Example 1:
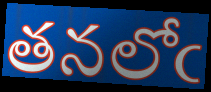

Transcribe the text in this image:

తనలోఁ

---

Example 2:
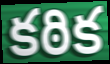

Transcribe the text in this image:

కఠిక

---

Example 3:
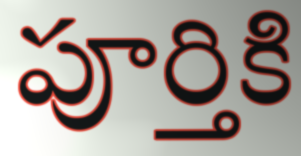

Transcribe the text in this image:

పూర్తికి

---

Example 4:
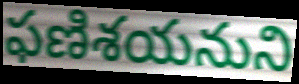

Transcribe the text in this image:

ఫణిశయనుని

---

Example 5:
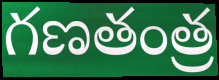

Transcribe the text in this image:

గణతంత్ర